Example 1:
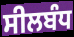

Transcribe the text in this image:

ਸੀਲਬੰਧ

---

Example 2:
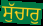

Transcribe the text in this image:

ਸੁੱਚਾਰੁ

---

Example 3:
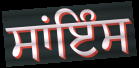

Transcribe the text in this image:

ਸਾਂਇੰਸ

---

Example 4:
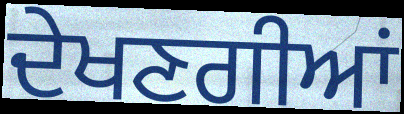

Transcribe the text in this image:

ਦੇਖਣਗੀਆਂ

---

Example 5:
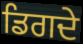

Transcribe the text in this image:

ਡਿਗਦੇ